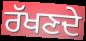
ਰੱਖਣਦੇ